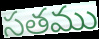
సతము